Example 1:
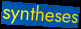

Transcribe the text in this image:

syntheses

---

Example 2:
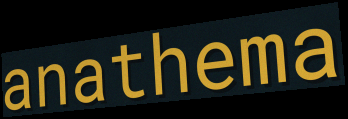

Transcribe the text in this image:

anathema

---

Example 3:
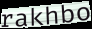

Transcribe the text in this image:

rakhbo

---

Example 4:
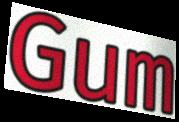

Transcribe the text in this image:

Gum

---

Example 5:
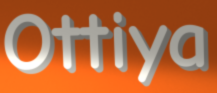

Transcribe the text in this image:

Ottiya